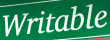
Writable